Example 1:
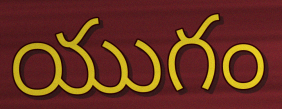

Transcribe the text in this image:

యుగం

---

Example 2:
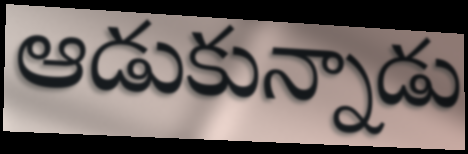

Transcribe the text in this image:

ఆడుకున్నాడు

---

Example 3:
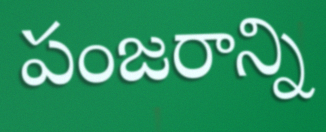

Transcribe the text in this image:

పంజరాన్ని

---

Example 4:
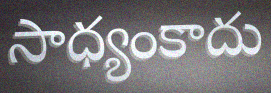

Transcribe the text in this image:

సాధ్యంకాదు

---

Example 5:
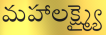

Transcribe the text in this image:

మహాలక్ష్మ్యై